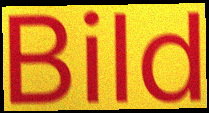
Bild